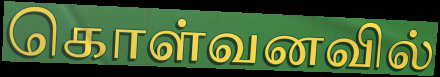
கொள்வனவில்